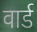
वार्ड